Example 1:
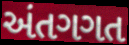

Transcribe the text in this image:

અંતગગત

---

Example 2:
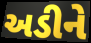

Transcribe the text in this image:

અડીને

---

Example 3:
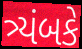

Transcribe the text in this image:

ત્ર્યંબકે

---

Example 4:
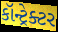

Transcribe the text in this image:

કૉન્ટ્રેક્ટર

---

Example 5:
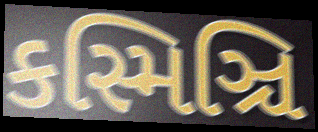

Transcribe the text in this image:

કસ્મિઞ્ચિ